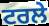
ਟਰਲੇ